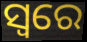
ସ୍ୱରେ